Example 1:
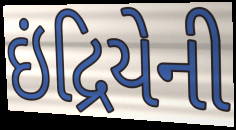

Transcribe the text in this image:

ઇંદ્રિયેની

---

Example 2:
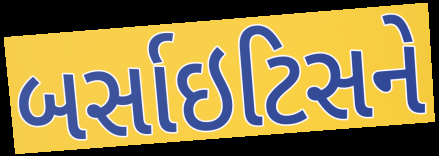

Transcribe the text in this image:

બર્સાઇટિસને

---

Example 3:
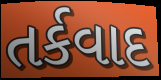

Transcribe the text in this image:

તર્કવાદ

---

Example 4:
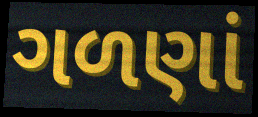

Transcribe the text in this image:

ગળણાં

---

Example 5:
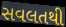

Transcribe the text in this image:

સવલતથી